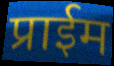
प्राईम